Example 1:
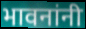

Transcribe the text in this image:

भावनांनी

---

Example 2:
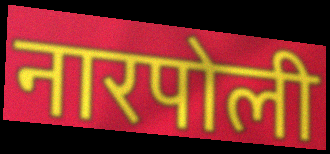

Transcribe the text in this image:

नारपोली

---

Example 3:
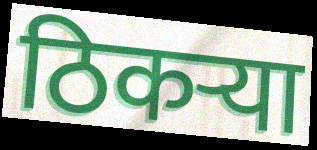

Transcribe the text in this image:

ठिकर्‍या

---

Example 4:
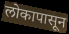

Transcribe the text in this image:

लोकापासून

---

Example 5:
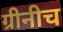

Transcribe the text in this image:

ग्रीनीच